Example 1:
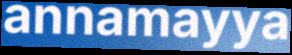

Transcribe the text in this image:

annamayya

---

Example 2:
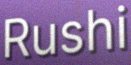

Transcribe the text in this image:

Rushi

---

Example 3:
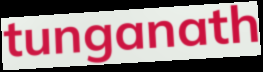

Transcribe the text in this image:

tunganath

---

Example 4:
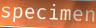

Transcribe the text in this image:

specimen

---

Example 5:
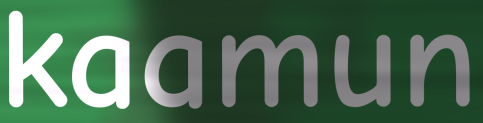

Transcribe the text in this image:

kaamun